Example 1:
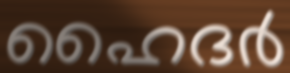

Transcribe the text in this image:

ഹൈദർ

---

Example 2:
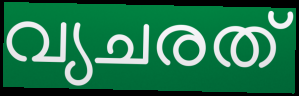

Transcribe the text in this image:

വ്യചരത്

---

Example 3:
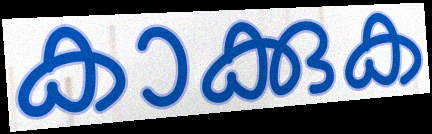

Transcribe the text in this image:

കാക്കുക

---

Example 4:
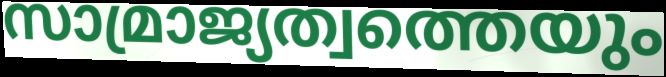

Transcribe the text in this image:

സാമ്രാജ്യത്വത്തെയും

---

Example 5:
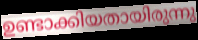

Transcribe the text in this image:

ഉണ്ടാക്കിയതായിരുന്നു